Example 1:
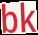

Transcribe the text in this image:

bk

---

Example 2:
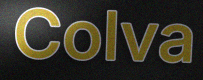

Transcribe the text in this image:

Colva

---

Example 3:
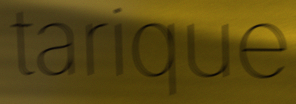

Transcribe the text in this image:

tarique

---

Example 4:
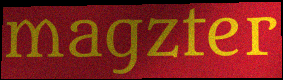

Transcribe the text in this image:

magzter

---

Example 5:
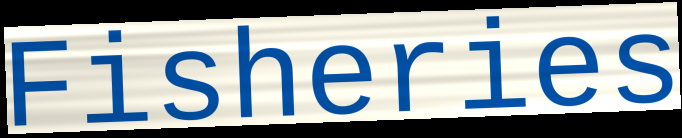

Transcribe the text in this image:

Fisheries